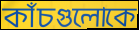
কাঁচগুলোকে